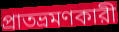
প্রাতভ্রমণকারী